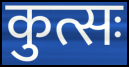
कुत्सः